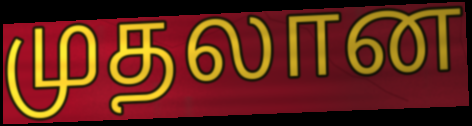
முதலான